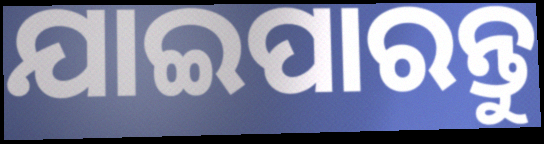
ଯାଇପାରନ୍ତୁ